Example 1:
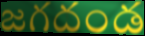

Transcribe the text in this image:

జగదండ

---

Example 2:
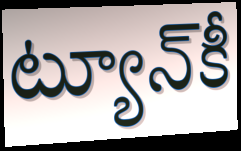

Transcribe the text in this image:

ట్యూన్‌కీ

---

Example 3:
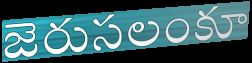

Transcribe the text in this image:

జెరుసలంకూ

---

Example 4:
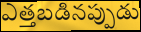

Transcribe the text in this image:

ఎత్తబడినప్పుడు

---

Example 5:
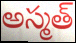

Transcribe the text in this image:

అస్మత్